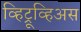
व्हिट्रूव्हिअस